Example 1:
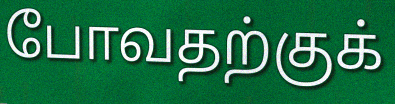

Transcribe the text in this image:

போவதற்குக்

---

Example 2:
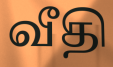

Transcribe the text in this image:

வீதி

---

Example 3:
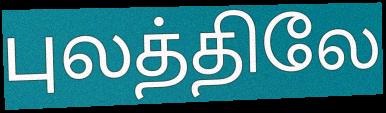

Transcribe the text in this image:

புலத்திலே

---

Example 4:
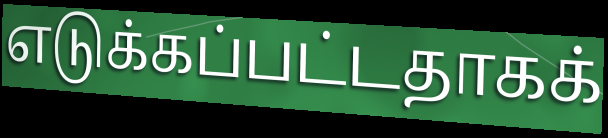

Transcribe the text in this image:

எடுக்கப்பட்டதாகக்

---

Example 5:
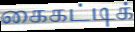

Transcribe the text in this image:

கைகட்டிக்